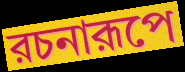
রচনারূপে